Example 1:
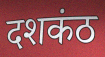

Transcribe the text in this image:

दशकंठ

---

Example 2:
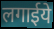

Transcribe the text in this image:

लगाईये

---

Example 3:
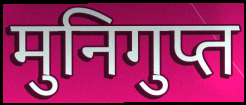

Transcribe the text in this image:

मुनिगुप्त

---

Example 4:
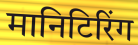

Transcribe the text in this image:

मानिटिरिंग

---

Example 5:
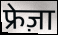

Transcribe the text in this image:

फ्रेज़ा